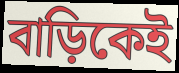
বাড়িকেই